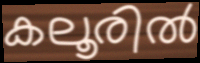
കലൂരിൽ